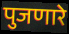
पुजणारे